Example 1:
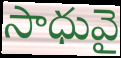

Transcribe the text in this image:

సాధువై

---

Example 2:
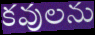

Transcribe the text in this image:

కవులను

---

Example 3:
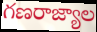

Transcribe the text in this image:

గణరాజ్యాల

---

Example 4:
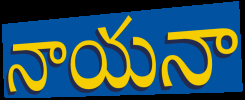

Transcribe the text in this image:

నాయనా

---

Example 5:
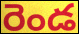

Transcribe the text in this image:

రెండ